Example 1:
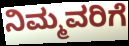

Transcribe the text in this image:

ನಿಮ್ಮವರಿಗೆ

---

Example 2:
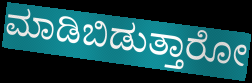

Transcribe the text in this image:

ಮಾಡಿಬಿಡುತ್ತಾರೋ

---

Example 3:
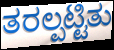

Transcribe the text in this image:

ತರಲ್ಪಟ್ಟಿತು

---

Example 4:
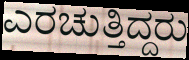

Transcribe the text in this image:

ಎರಚುತ್ತಿದ್ದರು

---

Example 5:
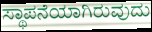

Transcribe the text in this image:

ಸ್ಥಾಪನೆಯಾಗಿರುವುದು